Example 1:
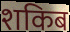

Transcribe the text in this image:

शकिब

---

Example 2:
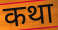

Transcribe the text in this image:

कथा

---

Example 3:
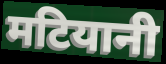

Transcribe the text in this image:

मटियानी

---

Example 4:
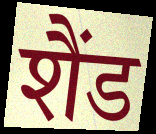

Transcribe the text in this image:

शैंड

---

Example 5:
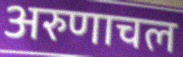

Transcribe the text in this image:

अरुणाचल